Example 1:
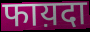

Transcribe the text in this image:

फाय़दा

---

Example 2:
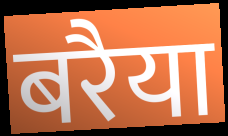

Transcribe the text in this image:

बरैया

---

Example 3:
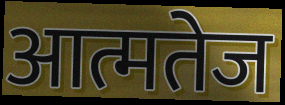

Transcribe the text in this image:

आत्मतेज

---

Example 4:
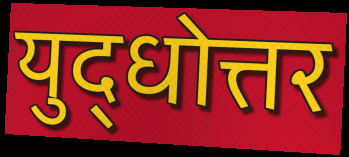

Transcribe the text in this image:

युद्धोत्तर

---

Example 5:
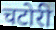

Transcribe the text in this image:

चटोरी